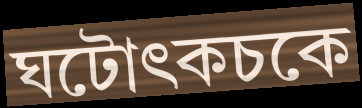
ঘটোৎকচকে